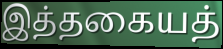
இத்தகையத்